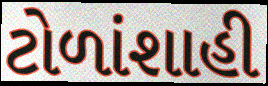
ટોળાંશાહી